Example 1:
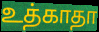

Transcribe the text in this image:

உத்காதா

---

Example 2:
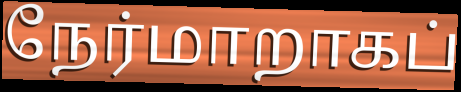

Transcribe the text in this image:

நேர்மாறாகப்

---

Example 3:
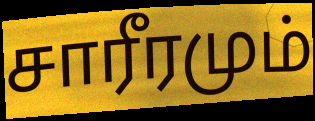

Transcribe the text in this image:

சாரீரமும்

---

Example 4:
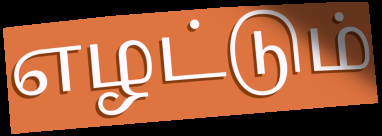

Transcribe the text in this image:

எழட்டும்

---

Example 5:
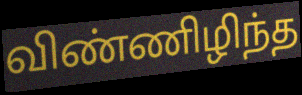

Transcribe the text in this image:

விண்ணிழிந்த